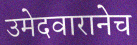
उमेदवारानेच